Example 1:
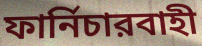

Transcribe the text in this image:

ফার্নিচারবাহী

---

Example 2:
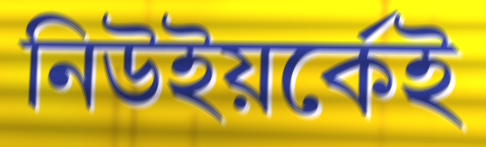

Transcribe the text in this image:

নিউইয়র্কেই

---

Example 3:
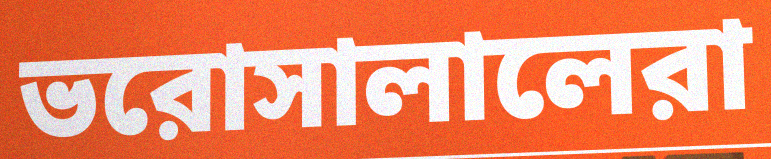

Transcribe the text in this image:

ভরোসালালেরা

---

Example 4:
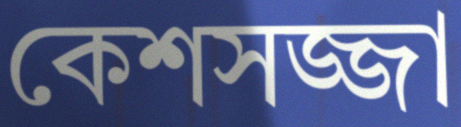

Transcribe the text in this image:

কেশসজ্জা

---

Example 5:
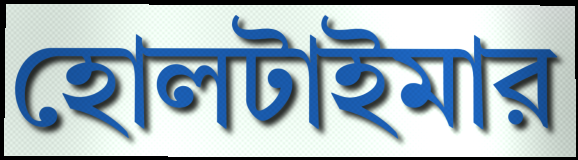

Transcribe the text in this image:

হোলটাইমার